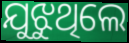
ଯୁଝୁଥିଲେ